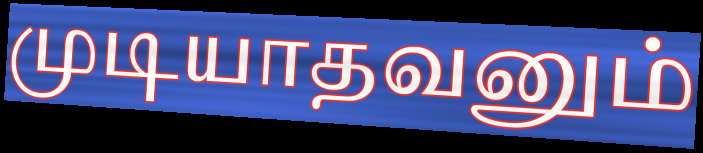
முடியாதவனும்